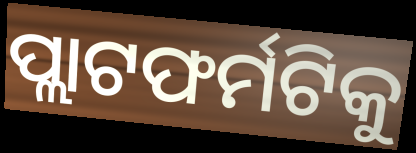
ପ୍ଲାଟଫର୍ମଟିକୁ